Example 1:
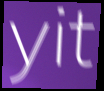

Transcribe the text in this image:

yit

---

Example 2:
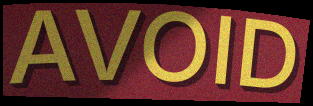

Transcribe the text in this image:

AVOID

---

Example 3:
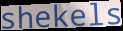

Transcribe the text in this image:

shekels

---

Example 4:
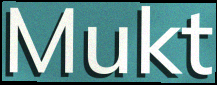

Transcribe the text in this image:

Mukt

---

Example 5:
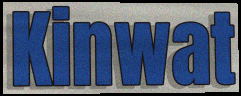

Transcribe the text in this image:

Kinwat